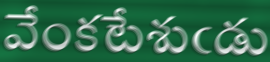
వేంకటేశుఁడు